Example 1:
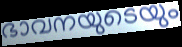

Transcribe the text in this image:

ഭാവനയുടെയും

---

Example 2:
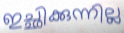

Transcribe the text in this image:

ഇച്ഛിക്കുന്നില്ല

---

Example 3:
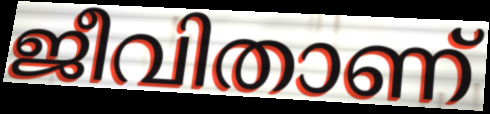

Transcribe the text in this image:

ജീവിതാണ്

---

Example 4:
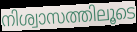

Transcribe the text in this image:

നിശ്വാസത്തിലൂടെ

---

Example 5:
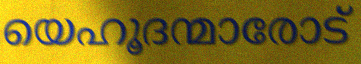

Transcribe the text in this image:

യെഹൂദന്മാരോട്